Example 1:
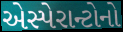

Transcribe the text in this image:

એસ્પેરાન્ટોનો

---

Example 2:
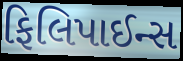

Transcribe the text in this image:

ફિલિપાઈન્સ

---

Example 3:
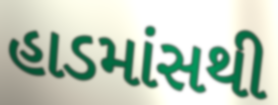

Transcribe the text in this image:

હાડમાંસથી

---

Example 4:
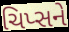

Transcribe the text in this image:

ચિપ્સને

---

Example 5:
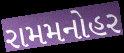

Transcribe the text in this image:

રામમનોહર